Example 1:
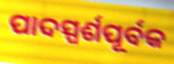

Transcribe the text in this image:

ପାଦସ୍ପର୍ଶପୂର୍ବକ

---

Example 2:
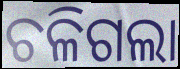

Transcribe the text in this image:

ଚଳିଗଲା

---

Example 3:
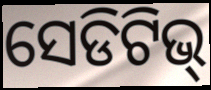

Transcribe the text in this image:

ସେଡିଟିଭ୍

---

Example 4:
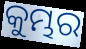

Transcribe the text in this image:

କୁମ୍ଭର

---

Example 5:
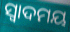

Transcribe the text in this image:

ସ୍ଵାଦମୟ